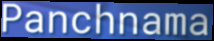
Panchnama